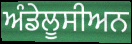
ਅੰਡੇਲੂਸੀਅਨ